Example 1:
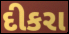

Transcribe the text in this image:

દીકરા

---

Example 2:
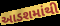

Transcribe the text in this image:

આડશમાંથી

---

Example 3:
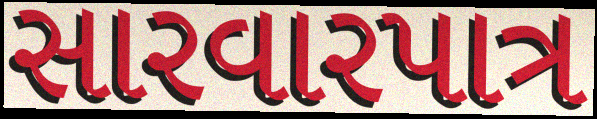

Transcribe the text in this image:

સારવારપાત્ર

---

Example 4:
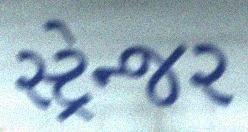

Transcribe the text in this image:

સ્ટ્રેન્જર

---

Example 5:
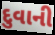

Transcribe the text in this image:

દુવાની